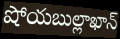
షోయబుల్లాఖాన్